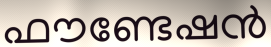
ഫൗണ്ടേഷൻ